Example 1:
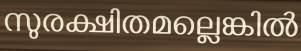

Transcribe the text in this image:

സുരക്ഷിതമല്ലെങ്കിൽ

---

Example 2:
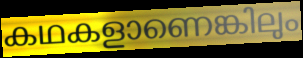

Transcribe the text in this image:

കഥകളാണെങ്കിലും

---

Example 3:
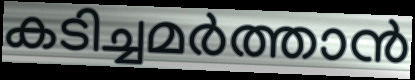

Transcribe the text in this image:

കടിച്ചമർത്താൻ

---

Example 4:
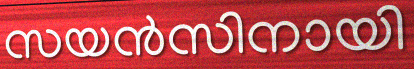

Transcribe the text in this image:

സയൻസിനായി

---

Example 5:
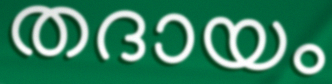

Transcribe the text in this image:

തദായം